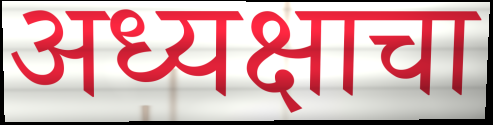
अध्यक्षाचा